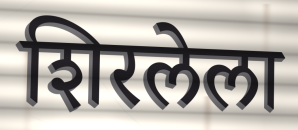
शिरलेला